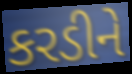
કરડીને